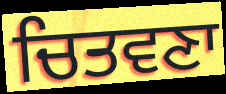
ਚਿਤਵਣਾ